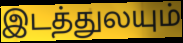
இடத்துலயும்